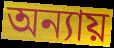
অন্যায়